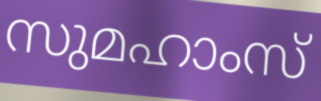
സുമഹാംസ്